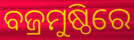
ବଜ୍ରମୁଷ୍ଠିରେ